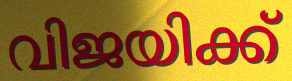
വിജയിക്ക്